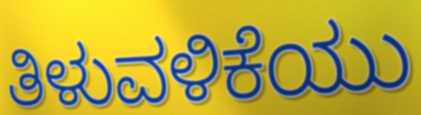
ತಿಳುವಳಿಕೆಯು